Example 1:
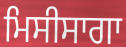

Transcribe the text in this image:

ਮਿਸੀਸਾਗਾ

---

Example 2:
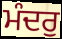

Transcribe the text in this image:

ਮੰਦਰੁ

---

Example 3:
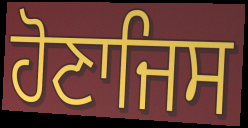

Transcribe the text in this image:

ਹੋਣਾਜਿਸ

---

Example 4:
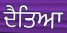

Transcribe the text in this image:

ਦੈਤਿਆ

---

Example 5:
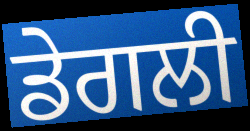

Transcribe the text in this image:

ਡੇਗਲੀ